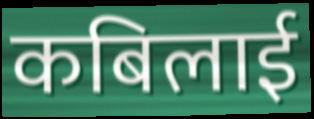
कबिलाई